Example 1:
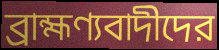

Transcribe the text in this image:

ব্রাহ্মণ্যবাদীদের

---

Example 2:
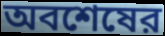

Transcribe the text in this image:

অবশেষের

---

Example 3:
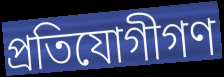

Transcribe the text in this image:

প্রতিযোগীগণ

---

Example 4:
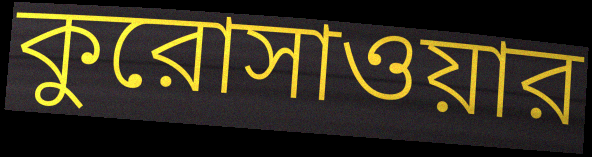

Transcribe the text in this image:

কুরোসাওয়ার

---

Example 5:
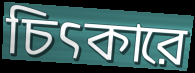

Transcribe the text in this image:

চিৎকারে